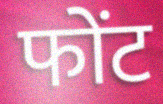
फोंट